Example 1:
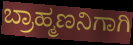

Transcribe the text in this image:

ಬ್ರಾಹ್ಮಣನಿಗಾಗಿ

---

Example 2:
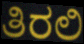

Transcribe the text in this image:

ತಿರಲಿ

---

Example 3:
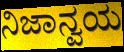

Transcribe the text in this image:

ನಿಜಾನ್ವಯ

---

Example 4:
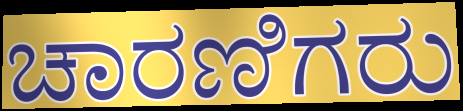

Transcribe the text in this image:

ಚಾರಣಿಗರು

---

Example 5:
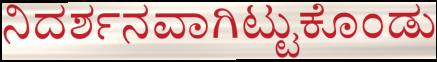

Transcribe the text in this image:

ನಿದರ್ಶನವಾಗಿಟ್ಟುಕೊಂಡು